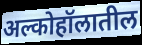
अल्कोहॉलातील